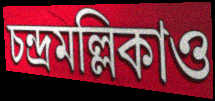
চন্দ্রমল্লিকাও